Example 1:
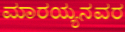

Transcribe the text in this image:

ಮಾರಯ್ಯನವರ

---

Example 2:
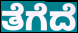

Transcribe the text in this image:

ತೆಗೆದೆ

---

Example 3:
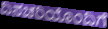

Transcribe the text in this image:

ದಿನಚರಿಯೊಂದಿಗೆ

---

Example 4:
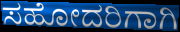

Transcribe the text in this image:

ಸಹೋದರಿಗಾಗಿ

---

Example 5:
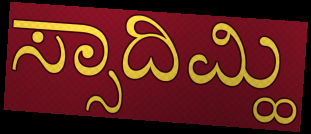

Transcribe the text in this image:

ಸ್ಸಾದಿಮ್ಹಿ